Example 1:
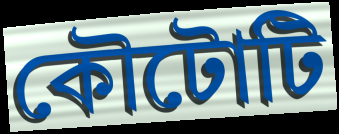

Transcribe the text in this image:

কৌটোটি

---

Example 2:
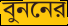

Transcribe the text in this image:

বুননের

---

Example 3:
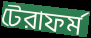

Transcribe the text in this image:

টেরাফর্ম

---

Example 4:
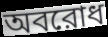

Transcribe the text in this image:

অবরোধ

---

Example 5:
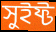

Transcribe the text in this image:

সুইফ্ট